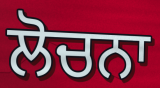
ਲੋਚਨਾ